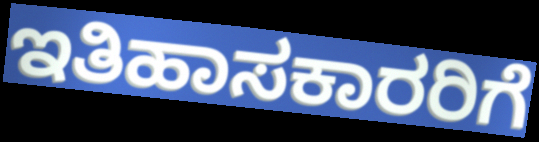
ಇತಿಹಾಸಕಾರರಿಗೆ